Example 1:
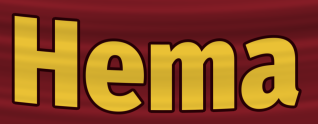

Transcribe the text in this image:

Hema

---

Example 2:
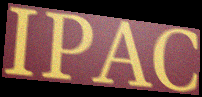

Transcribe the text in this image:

IPAC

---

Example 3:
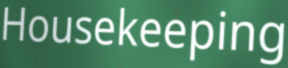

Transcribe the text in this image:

Housekeeping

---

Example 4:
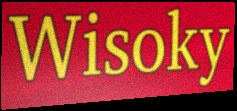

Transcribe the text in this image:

Wisoky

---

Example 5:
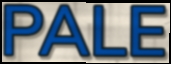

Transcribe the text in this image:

PALE